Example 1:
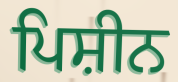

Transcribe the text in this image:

ਪਿਸ਼ੀਨ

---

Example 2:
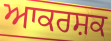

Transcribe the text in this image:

ਆਕਰਸ਼ਕ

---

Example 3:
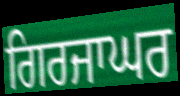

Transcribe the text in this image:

ਗਿਰਜਾਘਰ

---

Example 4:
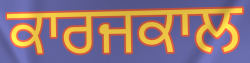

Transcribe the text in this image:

ਕਾਰਜਕਾਲ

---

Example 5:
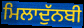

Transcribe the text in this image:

ਮਿਲਾਦੁੱਨਬੀ